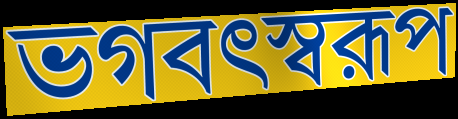
ভগবৎস্বরূপ